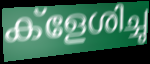
ക്ളേശിച്ചു